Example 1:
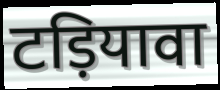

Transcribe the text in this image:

टड़ियावा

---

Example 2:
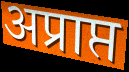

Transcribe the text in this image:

अप्राप्त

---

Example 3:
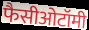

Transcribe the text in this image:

फैसीओटॉमी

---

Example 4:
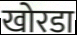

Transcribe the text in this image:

खोरडा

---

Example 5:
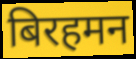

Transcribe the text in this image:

बिरहमन